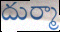
దుర్మా